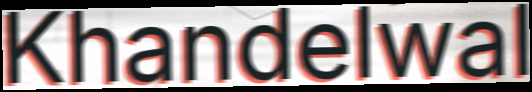
Khandelwal